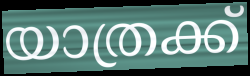
യാത്രക്ക്